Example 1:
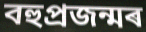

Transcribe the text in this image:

বহুপ্ৰজন্মৰ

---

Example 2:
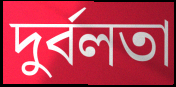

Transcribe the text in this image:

দুৰ্বলতা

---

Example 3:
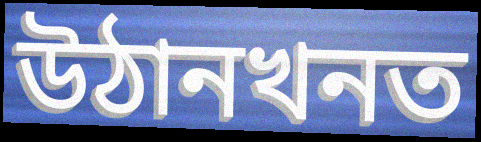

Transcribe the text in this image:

উঠানখনত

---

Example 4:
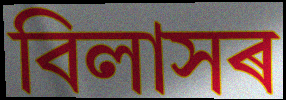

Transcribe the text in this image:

বিলাসৰ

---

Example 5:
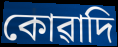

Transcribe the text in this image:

কোৱাদি